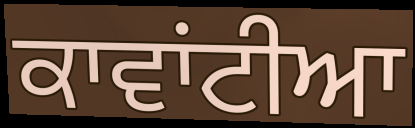
ਕਾਵਾਂਟੀਆ